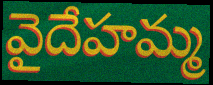
వైదేహమ్మ